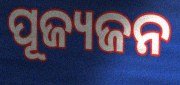
ପୂଜ୍ୟଜନ